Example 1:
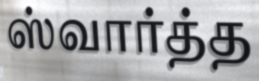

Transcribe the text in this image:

ஸ்வார்த்த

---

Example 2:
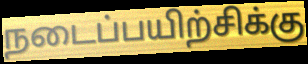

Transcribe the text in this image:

நடைப்பயிற்சிக்கு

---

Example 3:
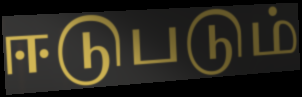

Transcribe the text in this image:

ஈடுபடும்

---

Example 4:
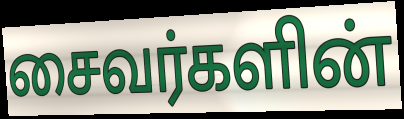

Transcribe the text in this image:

சைவர்களின்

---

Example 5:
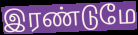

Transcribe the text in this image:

இரண்டுமே